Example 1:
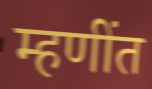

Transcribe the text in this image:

म्हणींत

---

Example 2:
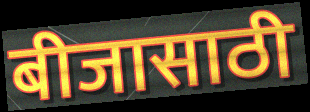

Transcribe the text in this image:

बीजासाठी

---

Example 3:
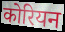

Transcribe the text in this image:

कोरियन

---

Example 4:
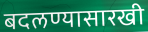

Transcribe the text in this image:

बदलण्यासारखी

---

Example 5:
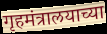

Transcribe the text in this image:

गृहमंत्रालयाच्या